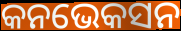
କନଭେକସନ